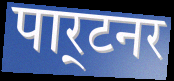
पार्टनर